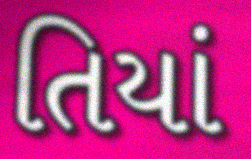
તિયાં